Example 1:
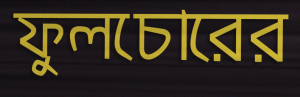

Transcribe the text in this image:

ফুলচোরের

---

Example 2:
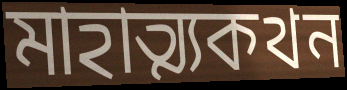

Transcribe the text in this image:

মাহাত্ম্যকথন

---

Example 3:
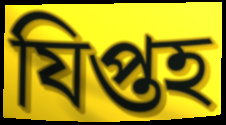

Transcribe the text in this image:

যিপ্তহ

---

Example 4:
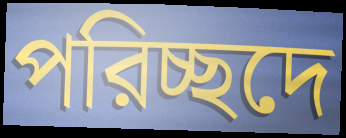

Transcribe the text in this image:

পরিচ্ছদে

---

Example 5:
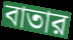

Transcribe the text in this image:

বাতার